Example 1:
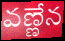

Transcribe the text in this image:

వణ్ణేన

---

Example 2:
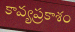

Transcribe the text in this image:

కావ్యప్రకాశం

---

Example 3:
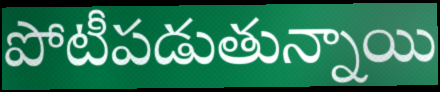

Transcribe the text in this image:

పోటీపడుతున్నాయి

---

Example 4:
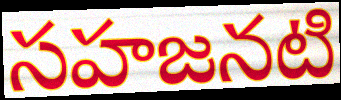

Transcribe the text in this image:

సహజనటి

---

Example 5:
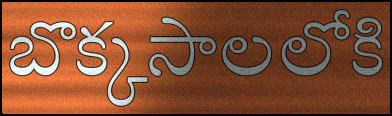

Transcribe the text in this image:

బొక్కసాలలోకి